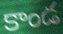
కాండ